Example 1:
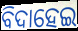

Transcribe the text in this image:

ବିଦାହେଇ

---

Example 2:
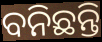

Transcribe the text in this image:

ବନିଛନ୍ତି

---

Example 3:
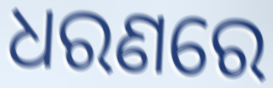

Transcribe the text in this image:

ଧରଣରେ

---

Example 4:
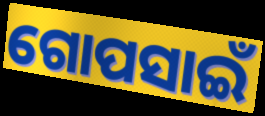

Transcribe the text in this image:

ଗୋପସାଇଁ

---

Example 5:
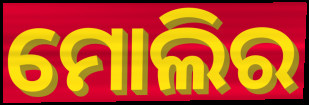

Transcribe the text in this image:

ମୋଲିର